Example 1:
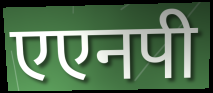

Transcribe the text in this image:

एएनपी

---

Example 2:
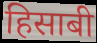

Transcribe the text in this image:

हिसाबी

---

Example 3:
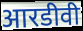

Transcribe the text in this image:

आरडीवी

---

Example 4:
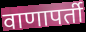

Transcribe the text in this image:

वाणापर्ती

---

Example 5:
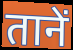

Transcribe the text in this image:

तानें